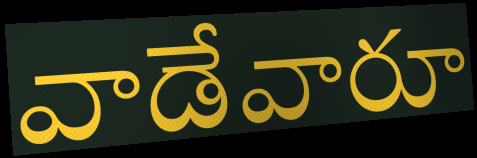
వాడేవారూ